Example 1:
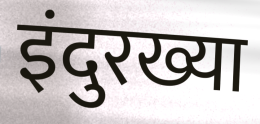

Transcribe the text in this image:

इंदुरख्या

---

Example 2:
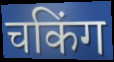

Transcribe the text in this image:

चकिंग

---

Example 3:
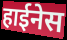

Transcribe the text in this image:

हाईनेस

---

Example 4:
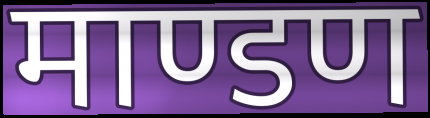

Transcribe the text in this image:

माण्डण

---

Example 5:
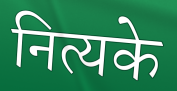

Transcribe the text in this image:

नित्यके